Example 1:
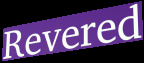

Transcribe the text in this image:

Revered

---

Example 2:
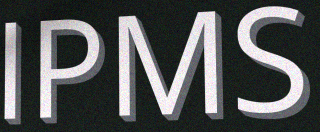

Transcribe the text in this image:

IPMS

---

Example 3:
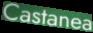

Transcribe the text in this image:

Castanea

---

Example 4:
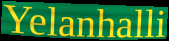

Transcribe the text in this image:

Yelanhalli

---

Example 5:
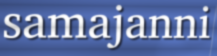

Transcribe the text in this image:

samajanni